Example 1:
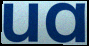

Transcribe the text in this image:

ua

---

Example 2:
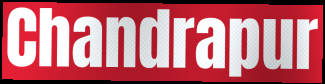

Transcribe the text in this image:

Chandrapur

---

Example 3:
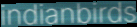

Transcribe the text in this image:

indianbirds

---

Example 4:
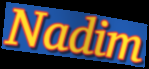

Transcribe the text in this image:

Nadim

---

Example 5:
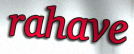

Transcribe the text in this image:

rahave